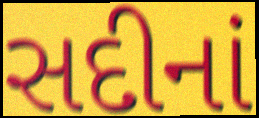
સદીનાં